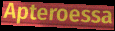
Apteroessa